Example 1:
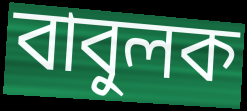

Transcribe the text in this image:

বাবুলক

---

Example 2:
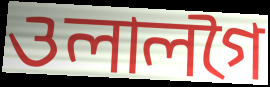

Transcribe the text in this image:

ওলালগৈ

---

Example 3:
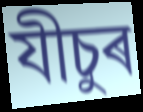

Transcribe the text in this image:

যীচুৰ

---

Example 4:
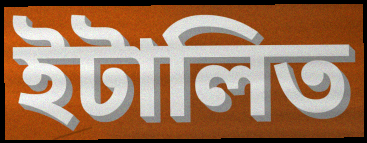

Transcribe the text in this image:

ইটালিত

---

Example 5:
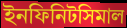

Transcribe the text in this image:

ইনফিনিটসিমাল